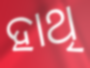
ହାଥି